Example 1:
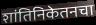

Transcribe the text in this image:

शांतिनिकेतनचा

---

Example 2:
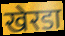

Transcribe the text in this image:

खेरडा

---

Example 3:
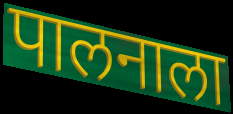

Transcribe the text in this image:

पालनाला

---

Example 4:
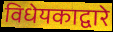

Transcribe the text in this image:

विधेयकाद्वारे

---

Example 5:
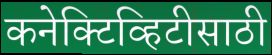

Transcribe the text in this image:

कनेक्टिव्हिटीसाठी